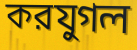
করযুগল